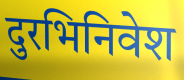
दुरभिनिवेश